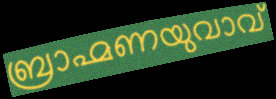
ബ്രാഹ്മണയുവാവ്